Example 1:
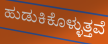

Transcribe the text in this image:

ಹುಡುಕಿಕೊಳ್ಳುತ್ತವೆ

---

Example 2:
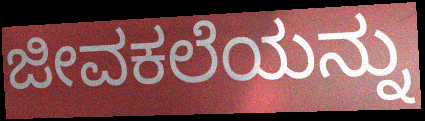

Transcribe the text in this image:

ಜೀವಕಲೆಯನ್ನು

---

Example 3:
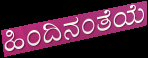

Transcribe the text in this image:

ಹಿಂದಿನಂತೆಯೆ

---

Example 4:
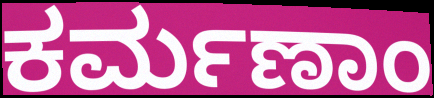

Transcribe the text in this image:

ಕರ್ಮಣಾಂ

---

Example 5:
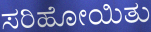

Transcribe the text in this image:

ಸರಿಹೋಯಿತು